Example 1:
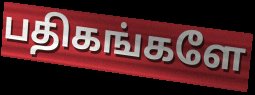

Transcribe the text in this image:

பதிகங்களே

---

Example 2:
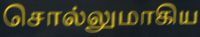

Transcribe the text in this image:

சொல்லுமாகிய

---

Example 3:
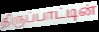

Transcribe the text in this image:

திருப்பாட்டின்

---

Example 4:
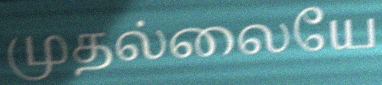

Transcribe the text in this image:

முதல்லையே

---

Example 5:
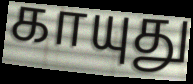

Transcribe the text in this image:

காயுது